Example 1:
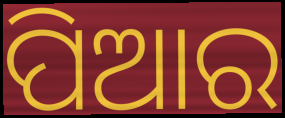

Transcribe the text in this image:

ପିଆର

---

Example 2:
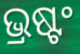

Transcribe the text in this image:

ଭ୍ରଷ୍ଟଂ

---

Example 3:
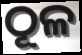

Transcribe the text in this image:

ଠୂଳ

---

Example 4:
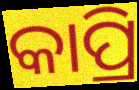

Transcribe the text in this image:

କାପ୍ରି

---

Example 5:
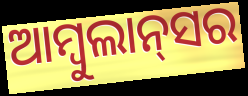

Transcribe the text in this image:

ଆମ୍ବୁଲାନ୍‌ସର